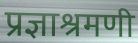
प्रज्ञाश्रमणी